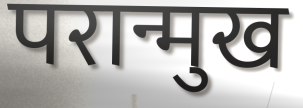
परान्मुख